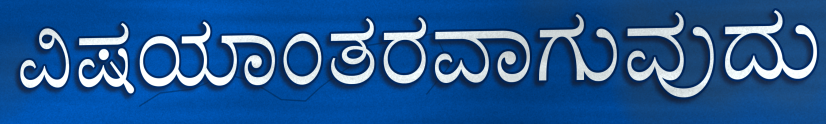
ವಿಷಯಾಂತರವಾಗುವುದು